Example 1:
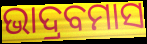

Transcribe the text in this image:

ଭାଦ୍ରବମାସ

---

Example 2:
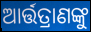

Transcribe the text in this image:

ଆର୍ତ୍ତତ୍ରାଣଙ୍କୁ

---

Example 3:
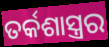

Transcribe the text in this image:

ତର୍କଶାସ୍ତ୍ରର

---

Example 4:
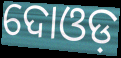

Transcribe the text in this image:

ଦୋଓଡ଼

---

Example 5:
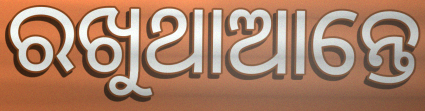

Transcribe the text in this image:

ରଖୁଥାଆନ୍ତେ